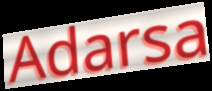
Adarsa